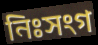
নিঃসংগ